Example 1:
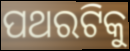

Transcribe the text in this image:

ପଥରଟିକୁ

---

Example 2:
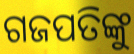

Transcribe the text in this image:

ଗଜପତିଙ୍କୁ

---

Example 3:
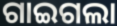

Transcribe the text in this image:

ଗାଇଗଲା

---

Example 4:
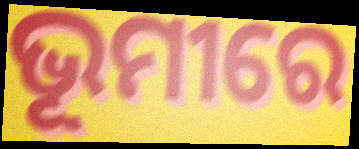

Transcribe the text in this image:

ଭୂମୀରେ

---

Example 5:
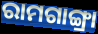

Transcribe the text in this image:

ରାମଗାଙ୍ଗ୍ରା